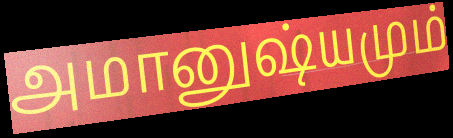
அமானுஷ்யமும்